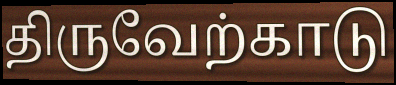
திருவேற்காடு